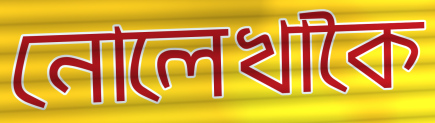
নোলেখাকৈ